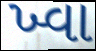
ખ્વા